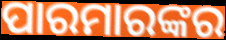
ପାରମାରଙ୍କର